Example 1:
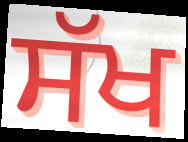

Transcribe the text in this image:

ਸੱਖ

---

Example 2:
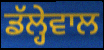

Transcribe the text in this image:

ਡੱਲ੍ਹੇਵਾਲ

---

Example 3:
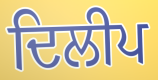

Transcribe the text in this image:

ਦਿਲੀਪ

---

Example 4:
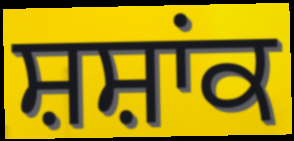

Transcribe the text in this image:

ਸ਼ਸ਼ਾਂਕ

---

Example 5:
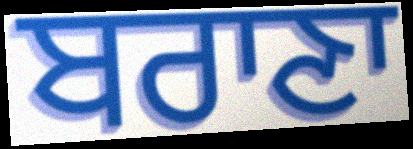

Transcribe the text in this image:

ਬਰਾਣਾ